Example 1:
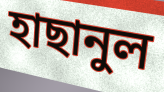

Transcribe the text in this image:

হাছানুল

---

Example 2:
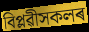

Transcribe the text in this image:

বিপ্লৱীসকলৰ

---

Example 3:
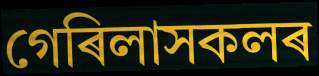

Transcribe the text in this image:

গেৰিলাসকলৰ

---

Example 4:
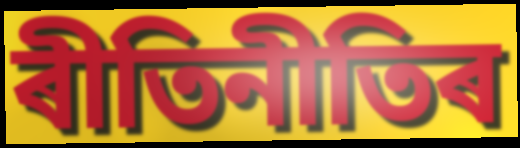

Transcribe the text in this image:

ৰীতিনীতিৰ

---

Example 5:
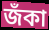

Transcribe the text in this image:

জঁকা